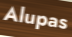
Alupas